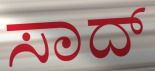
ಸಾದ್